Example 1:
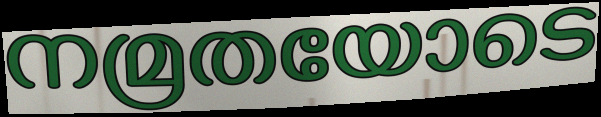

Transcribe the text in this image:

നമ്രതയോടെ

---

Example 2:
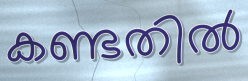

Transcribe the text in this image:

കണ്ടതിൽ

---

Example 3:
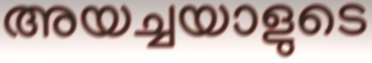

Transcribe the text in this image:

അയച്ചയാളുടെ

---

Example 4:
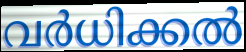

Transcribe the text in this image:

വർധിക്കൽ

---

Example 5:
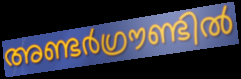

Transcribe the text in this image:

അണ്ടർഗ്രൗണ്ടിൽ